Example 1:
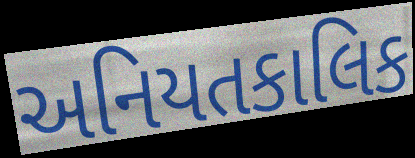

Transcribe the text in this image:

અનિયતકાલિક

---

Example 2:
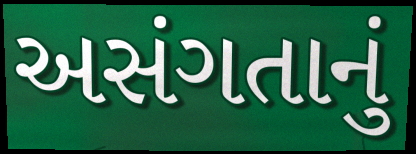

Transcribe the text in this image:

અસંગતાનું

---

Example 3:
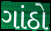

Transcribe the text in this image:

ગાંઠો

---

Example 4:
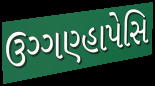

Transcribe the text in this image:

ઉગ્ગણ્હાપેસિ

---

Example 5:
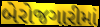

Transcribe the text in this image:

બેરોજગારીમાં